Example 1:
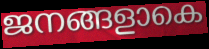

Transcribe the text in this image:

ജനങ്ങളാകെ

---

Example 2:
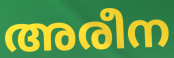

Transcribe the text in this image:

അരീന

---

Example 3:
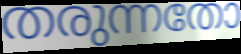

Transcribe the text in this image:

തരുന്നതോ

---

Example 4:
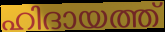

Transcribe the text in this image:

ഹിദായത്ത്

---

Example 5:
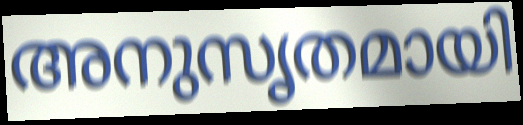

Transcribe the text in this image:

അനുസൃതമായി